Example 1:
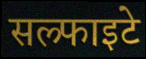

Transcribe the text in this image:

सल्फाइटे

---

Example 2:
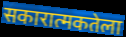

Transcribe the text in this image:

सकारात्मकतेला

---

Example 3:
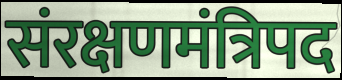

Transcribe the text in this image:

संरक्षणमंत्रिपद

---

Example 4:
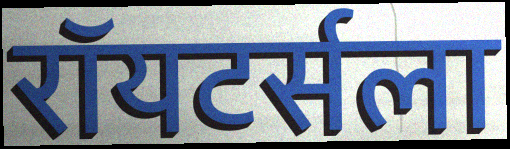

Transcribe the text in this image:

रॉयटर्सला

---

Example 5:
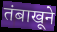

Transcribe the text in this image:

तंबाखूने